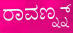
ರಾವಣ್ನ್ನ್